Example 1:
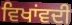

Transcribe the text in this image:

ਵਿਖਾਂਵਦੀ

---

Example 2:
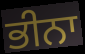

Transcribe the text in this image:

ਭੀਨਾ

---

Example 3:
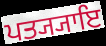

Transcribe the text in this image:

ਪਤ੍ਯ੍ਯਾਇ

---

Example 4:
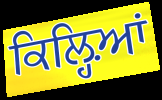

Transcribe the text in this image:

ਕਿਲ਼੍ਹਿਆਂ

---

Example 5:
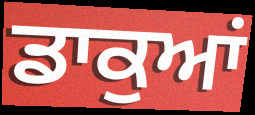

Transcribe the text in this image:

ਡਾਕੁਆਂ